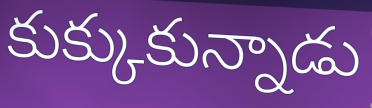
కుక్కుకున్నాడు